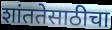
शांततेसाठीचा